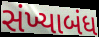
સંખ્યાબંધ